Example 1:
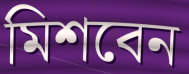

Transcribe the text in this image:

মিশবেন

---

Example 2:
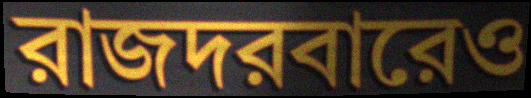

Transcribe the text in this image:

রাজদরবারেও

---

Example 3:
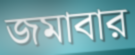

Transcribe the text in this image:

জমাবার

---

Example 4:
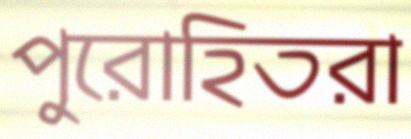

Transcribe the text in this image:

পুরোহিতরা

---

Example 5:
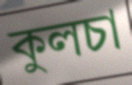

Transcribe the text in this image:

কুলচা